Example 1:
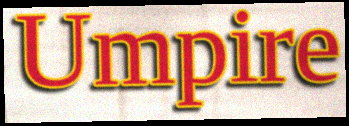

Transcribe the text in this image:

Umpire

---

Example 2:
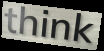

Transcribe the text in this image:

think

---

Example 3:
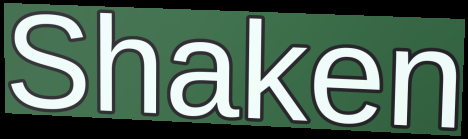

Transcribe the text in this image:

Shaken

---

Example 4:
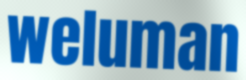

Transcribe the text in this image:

weluman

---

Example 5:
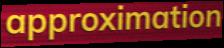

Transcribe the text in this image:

approximation